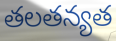
తలతన్యత